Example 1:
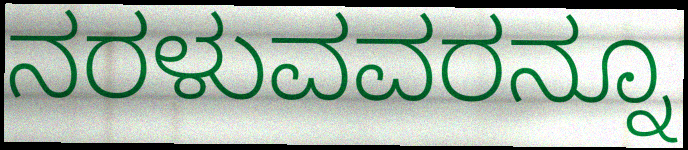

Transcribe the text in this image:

ನರಳುವವರನ್ನೂ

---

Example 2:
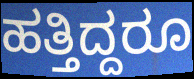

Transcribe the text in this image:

ಹತ್ತಿದ್ದರೂ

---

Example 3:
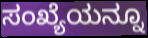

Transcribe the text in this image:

ಸಂಖ್ಯೆಯನ್ನೂ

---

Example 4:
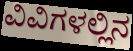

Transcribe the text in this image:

ವಿವಿಗಳಲ್ಲಿನ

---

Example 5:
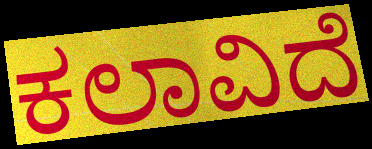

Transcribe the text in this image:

ಕಲಾವಿದೆ